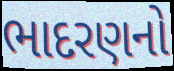
ભાદરણનો